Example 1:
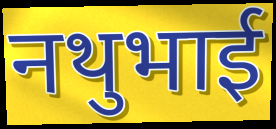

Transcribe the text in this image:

नथुभाई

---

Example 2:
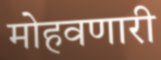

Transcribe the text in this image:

मोहवणारी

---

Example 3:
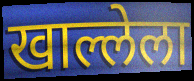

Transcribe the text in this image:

खाल्लेला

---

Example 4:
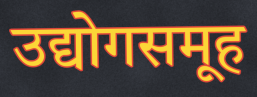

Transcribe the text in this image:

उद्योगसमूह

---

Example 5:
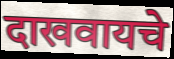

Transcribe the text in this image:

दाखवायचे